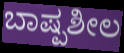
ಬಾಷ್ಪಶೀಲ